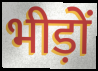
भीड़ों